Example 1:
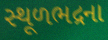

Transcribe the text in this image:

સ્થૂળભદ્રના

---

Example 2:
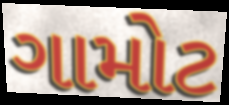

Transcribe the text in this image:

ગામોટ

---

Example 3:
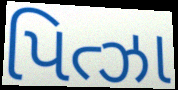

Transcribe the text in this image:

પિત્ઝા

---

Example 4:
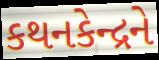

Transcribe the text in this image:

કથનકેન્દ્રને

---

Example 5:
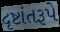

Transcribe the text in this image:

દૃષ્ટાંતરૂપે